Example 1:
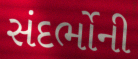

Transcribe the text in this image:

સંદર્ભોની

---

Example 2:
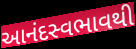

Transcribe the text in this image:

આનંદસ્વભાવથી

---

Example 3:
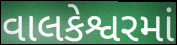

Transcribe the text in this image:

વાલકેશ્વરમાં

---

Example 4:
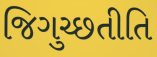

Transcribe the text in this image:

જિગુચ્છતીતિ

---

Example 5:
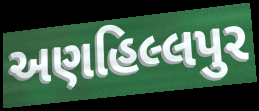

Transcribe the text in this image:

અણહિલ્લપુર